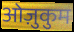
ओज़ुकुम